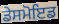
ਡੇਸਮੋਇਡ